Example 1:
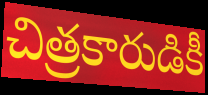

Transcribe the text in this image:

చిత్రకారుడికీ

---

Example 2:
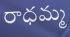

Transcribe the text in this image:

రాధమ్మ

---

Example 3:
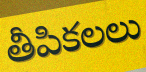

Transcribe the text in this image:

తీపికలలు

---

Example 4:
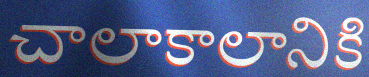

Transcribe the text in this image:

చాలాకాలానికి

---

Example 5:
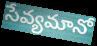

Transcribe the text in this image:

సేవ్యమానో